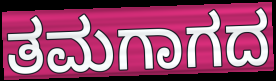
ತಮಗಾಗದ